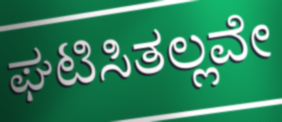
ಘಟಿಸಿತಲ್ಲವೇ